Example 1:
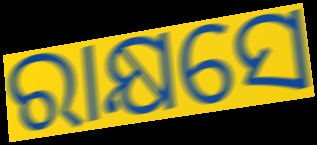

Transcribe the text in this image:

ରାକ୍ଷସେ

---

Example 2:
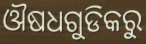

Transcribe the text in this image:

ଔଷଧଗୁଡିକରୁ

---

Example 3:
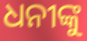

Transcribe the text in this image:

ଧନୀଙ୍କୁ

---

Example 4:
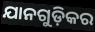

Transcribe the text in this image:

ଯାନଗୁଡ଼ିକର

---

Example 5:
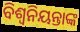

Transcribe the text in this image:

ବିଶ୍ବନିୟନ୍ତାଙ୍କ